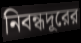
নিবন্ধদূরের